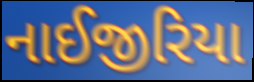
નાઈજીરિયા